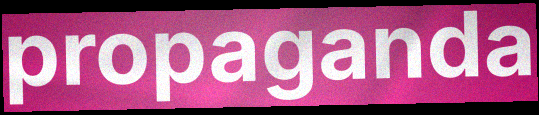
propaganda